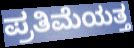
ಪ್ರತಿಮೆಯತ್ತ